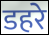
डहरे